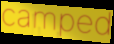
camped